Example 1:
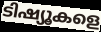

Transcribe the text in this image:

ടിഷ്യൂകളെ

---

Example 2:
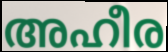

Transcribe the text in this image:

അഹീര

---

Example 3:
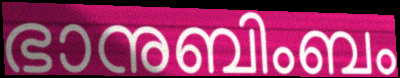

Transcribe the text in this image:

ഭാനുബിംബം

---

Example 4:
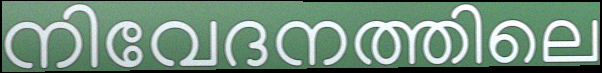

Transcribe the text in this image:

നിവേദനത്തിലെ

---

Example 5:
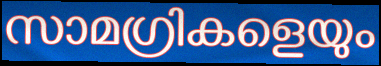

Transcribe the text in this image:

സാമഗ്രികളെയും